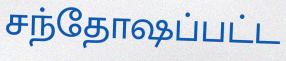
சந்தோஷப்பட்ட